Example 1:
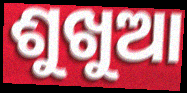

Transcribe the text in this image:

ଶୁଖୁଆ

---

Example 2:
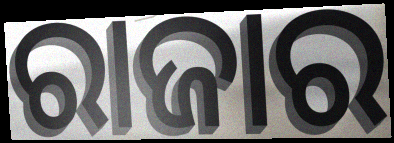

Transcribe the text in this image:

ରାଜାର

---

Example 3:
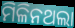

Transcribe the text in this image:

ମିଳିନଥଲା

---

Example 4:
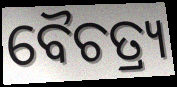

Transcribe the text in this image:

ବୈଚତ୍ର୍ୟ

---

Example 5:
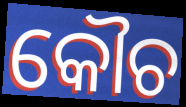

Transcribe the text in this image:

କୌଚ